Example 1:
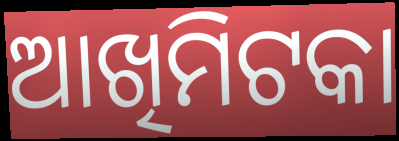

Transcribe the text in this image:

ଆଖିମିଟକା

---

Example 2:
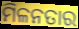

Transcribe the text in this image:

ମିଳନତାର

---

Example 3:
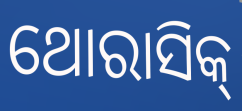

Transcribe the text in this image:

ଥୋରାସିକ୍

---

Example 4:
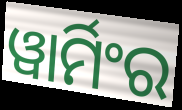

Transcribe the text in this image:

ୱାର୍ମିଂର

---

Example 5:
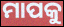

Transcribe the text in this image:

ମାପକୁ